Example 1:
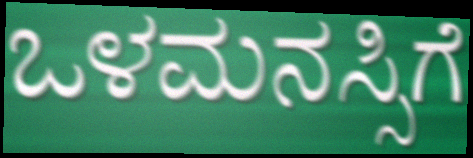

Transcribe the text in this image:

ಒಳಮನಸ್ಸಿಗೆ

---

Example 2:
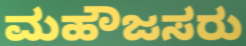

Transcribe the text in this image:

ಮಹೌಜಸರು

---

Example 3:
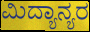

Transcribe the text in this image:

ಮಿದ್ಯಾನ್ಯರ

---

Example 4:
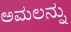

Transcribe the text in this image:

ಅಮಲನ್ನು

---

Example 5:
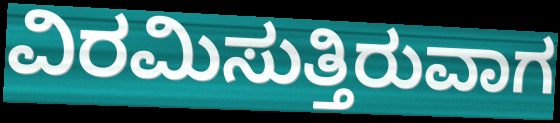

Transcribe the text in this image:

ವಿರಮಿಸುತ್ತಿರುವಾಗ